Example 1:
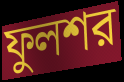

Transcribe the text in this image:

ফুলশর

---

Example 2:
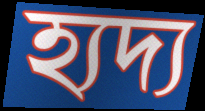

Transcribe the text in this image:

হ্যদ্য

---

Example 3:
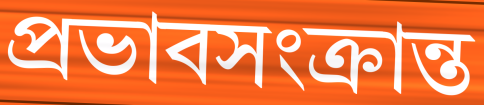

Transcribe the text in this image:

প্রভাবসংক্রান্ত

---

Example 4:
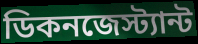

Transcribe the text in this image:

ডিকনজেস্ট্যান্ট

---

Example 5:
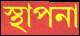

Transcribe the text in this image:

স্থাপনা